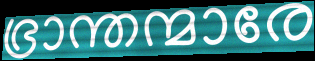
ഭ്രാന്തന്മാരേ